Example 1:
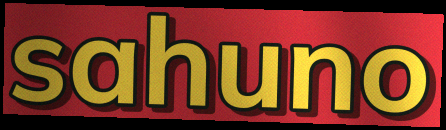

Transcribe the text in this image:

sahuno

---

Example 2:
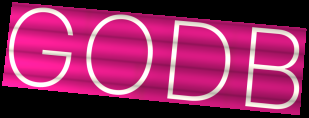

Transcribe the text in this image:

GODB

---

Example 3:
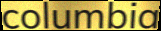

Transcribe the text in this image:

columbia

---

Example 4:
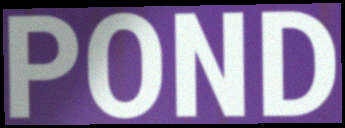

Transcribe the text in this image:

POND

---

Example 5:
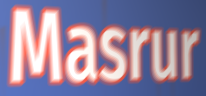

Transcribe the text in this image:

Masrur